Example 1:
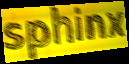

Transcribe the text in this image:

sphinx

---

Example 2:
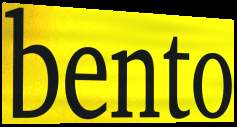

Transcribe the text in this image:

bento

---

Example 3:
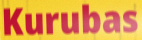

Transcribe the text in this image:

Kurubas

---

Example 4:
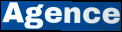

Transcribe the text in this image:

Agence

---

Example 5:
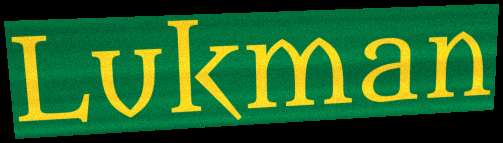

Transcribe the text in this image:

Lukman